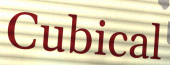
Cubical